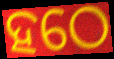
ହଠେ